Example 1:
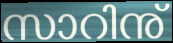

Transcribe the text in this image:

സാറിനു്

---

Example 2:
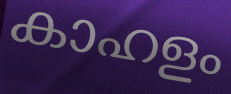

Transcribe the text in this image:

കാഹളം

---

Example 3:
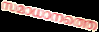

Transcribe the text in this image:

സമാധാനത്തെ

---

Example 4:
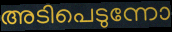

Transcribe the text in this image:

അടിപെടുന്നോ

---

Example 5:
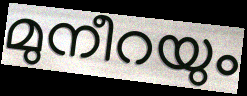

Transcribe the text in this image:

മുനീറയും